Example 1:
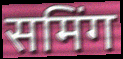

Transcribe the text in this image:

समिंग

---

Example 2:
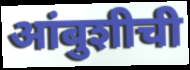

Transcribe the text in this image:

आंबुशीची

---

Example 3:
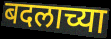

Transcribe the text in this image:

बदलाच्या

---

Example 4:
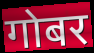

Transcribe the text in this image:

गोबर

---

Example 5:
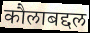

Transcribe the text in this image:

कौलाबद्दल